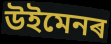
উইমেনৰ